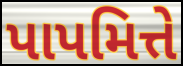
પાપમિત્તે